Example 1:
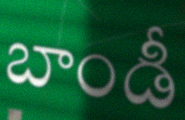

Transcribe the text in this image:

బాండీ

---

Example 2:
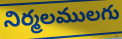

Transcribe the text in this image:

నిర్మలములగు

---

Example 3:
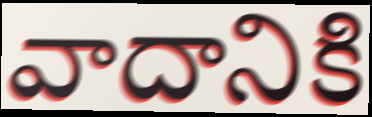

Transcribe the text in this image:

వాదానికి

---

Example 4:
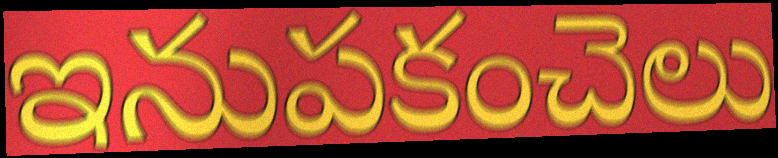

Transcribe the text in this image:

ఇనుపకంచెలు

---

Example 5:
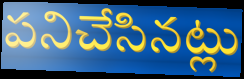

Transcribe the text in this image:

పనిచేసినట్లు